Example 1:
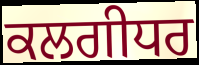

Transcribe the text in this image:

ਕਲਗੀਧਰ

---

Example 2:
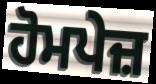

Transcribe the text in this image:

ਹੋਮਪੇਜ਼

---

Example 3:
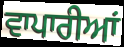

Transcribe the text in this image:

ਵਾਪਾਰੀਆਂ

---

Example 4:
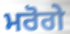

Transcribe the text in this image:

ਮਰੋਗੇ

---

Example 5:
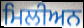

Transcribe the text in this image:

ਮਿਲੀਅਨ